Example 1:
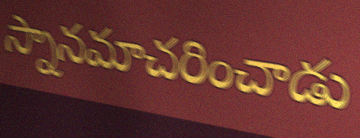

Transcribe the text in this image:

స్నానమాచరించాడు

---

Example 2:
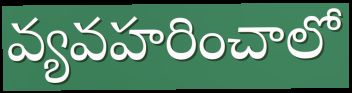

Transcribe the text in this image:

వ్యవహరించాలో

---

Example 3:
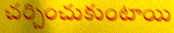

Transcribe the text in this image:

చర్చించుకుంటాయి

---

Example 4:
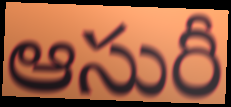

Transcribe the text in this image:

ఆసురీ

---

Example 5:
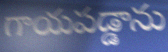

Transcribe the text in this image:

గాయపడ్డాను